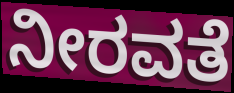
ನೀರವತೆ